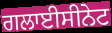
ਗਲਾਈਸੀਨੇਟ